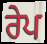
ਰੇਪ